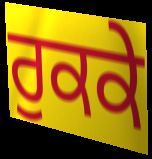
ਰੁਕਕੇ